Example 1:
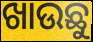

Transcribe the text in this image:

ଖାଉଛୁ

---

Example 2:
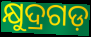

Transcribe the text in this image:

କ୍ଷୁଦ୍ରଗଡ଼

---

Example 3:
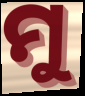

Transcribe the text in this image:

ମୁ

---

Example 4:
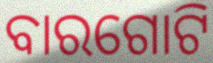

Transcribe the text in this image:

ବାରଗୋଟି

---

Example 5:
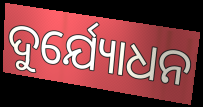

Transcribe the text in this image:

ଦୁର୍ଯ୍ୟୋଧନ